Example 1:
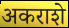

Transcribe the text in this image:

अकराशे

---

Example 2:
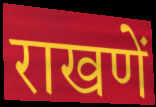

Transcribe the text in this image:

राखणें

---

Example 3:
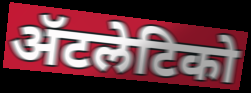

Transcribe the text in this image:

ॲटलेटिको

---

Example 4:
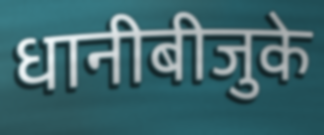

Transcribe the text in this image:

धानीबीजुके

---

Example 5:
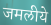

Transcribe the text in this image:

जमलीये